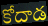
కోదాడ